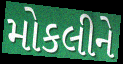
મોકલીને